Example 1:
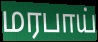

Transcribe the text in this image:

மரபாய்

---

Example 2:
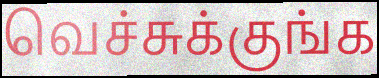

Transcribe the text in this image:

வெச்சுக்குங்க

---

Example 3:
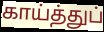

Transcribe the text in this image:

காய்த்துப்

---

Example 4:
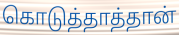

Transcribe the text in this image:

கொடுத்தாத்தான்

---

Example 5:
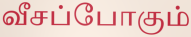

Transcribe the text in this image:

வீசப்போகும்